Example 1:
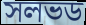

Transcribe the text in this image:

সলভড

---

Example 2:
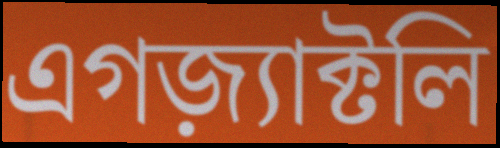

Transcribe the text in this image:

এগজ়্যাক্টলি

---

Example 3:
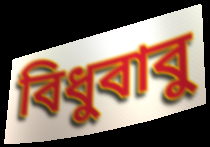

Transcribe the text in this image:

বিধুবাবু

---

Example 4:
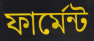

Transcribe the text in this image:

ফার্মেন্ট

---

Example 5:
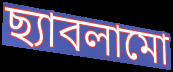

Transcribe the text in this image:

ছ্যাবলামো